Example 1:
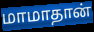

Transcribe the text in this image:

மாமாதான்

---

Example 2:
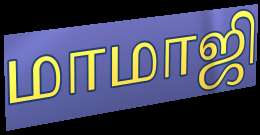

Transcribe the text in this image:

மாமாஜி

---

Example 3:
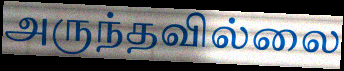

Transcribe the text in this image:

அருந்தவில்லை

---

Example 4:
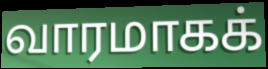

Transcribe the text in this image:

வாரமாகக்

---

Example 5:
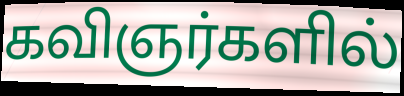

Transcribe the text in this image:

கவிஞர்களில்